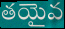
తయైవ